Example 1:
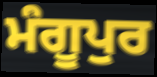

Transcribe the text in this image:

ਮੰਗੂਪੁਰ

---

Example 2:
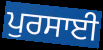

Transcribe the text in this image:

ਪੁਰਸਾਈ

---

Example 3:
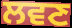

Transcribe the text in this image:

ਲਵਣ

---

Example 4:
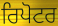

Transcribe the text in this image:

ਰਿਪੋਟਰ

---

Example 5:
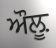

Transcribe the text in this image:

ਔਲ਼ੂ